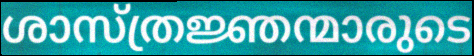
ശാസ്ത്രജ്ഞന്മാരുടെ